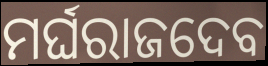
ମର୍ଘରାଜଦେବ